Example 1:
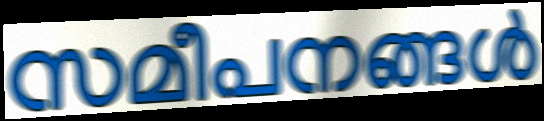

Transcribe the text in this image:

സമീപനങ്ങൾ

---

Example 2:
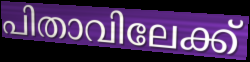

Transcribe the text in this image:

പിതാവിലേക്ക്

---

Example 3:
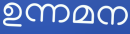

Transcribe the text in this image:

ഉന്നമന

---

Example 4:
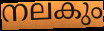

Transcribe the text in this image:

നലകും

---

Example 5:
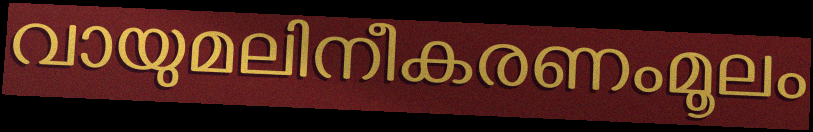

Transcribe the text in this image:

വായുമലിനീകരണംമൂലം